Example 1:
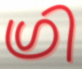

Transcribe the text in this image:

ഗ്രി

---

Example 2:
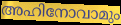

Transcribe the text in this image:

അഹിനോവാമും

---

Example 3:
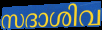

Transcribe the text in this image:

സദാശിവ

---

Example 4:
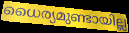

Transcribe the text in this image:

ധൈര്യമുണ്ടായില്ല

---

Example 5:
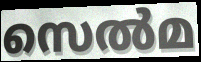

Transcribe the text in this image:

സെൽമ